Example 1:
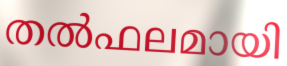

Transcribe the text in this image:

തൽഫലമായി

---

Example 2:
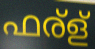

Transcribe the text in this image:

ഫര്ള്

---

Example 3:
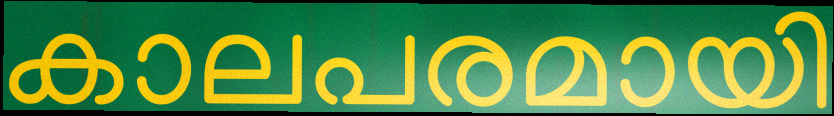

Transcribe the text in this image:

കാലപരമായി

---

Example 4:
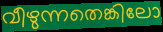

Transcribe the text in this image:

വീഴുന്നതെങ്കിലോ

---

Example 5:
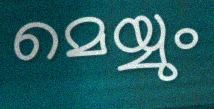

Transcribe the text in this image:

മെയ്യും